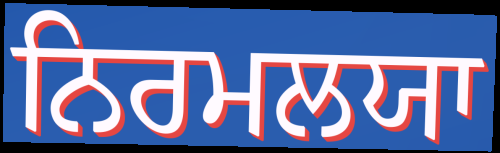
ਨਿਰਮਲਯਾ